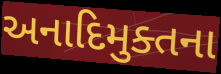
અનાદિમુક્તના